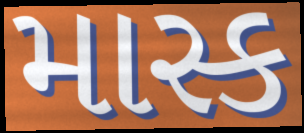
માસ્ક